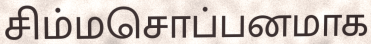
சிம்மசொப்பனமாக